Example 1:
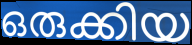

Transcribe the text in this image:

ഒരുക്കിയ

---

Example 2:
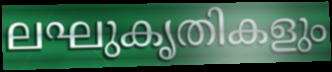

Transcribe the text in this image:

ലഘുകൃതികളും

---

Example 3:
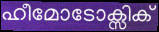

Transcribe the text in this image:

ഹീമോടോക്സിക്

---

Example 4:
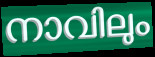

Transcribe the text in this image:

നാവിലും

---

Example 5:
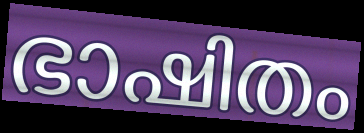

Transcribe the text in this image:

ഭാഷിതം